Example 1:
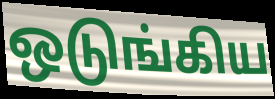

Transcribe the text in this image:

ஒடுங்கிய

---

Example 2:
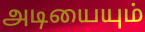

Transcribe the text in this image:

அடியையும்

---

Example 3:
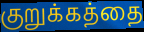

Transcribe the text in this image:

குறுக்கத்தை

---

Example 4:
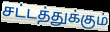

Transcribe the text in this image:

சட்டத்துக்கும்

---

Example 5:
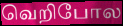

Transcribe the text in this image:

வெறிபோல